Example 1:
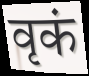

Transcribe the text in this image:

वृकं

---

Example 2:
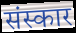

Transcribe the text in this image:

संस्कार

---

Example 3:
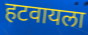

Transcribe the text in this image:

हटवायला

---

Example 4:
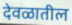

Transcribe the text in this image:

देवळातील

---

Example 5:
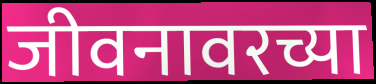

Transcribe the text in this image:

जीवनावरच्या